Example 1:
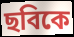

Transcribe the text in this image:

ছবিকে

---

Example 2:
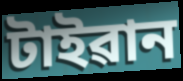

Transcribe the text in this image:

টাইৱান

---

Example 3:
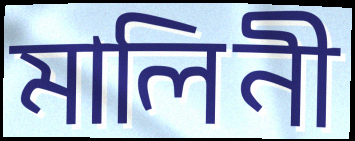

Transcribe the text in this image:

মালিনী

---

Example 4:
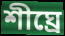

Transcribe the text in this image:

শীঘ্ৰে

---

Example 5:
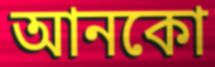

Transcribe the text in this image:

আনকো